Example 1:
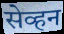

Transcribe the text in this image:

सेव्हन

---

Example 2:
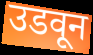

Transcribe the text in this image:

उडवून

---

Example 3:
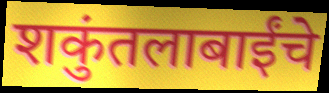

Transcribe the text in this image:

शकुंतलाबाईंचे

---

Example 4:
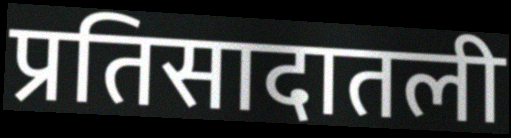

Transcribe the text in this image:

प्रतिसादातली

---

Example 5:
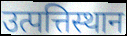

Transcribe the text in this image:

उत्पत्तिस्थान